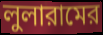
লুলারামের